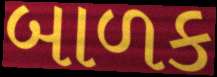
બાળક